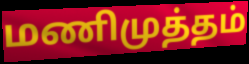
மணிமுத்தம்